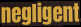
negligent